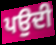
ਪਉਦੀ